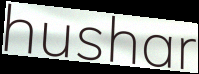
hushar